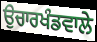
ਉਚਾਰਖੰਡਵਾਲੇ